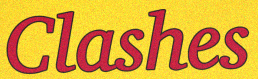
Clashes